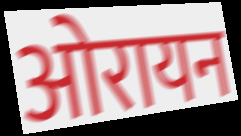
ओरायन